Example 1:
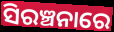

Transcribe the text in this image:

ସିରଞ୍ଚନାରେ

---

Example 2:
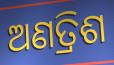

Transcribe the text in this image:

ଅଣତ୍ରିଶ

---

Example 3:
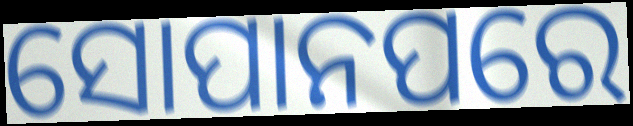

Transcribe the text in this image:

ସୋପାନପରେ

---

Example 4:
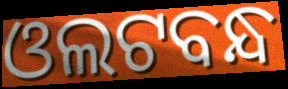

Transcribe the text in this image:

ଓଲଟବନ୍ଧ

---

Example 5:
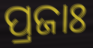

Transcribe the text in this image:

ପ୍ରଜାଃ